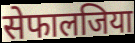
सेफालजिया